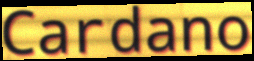
Cardano